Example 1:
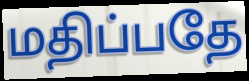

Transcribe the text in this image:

மதிப்பதே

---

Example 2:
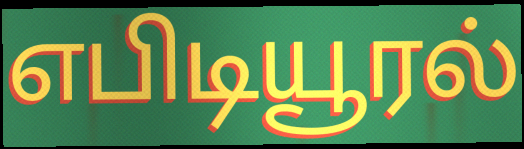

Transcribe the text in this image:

எபிடியூரல்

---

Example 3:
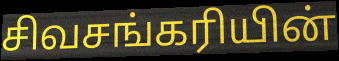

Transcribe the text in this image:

சிவசங்கரியின்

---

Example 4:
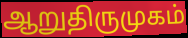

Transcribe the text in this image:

ஆறுதிருமுகம்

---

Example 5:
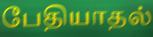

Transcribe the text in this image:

பேதியாதல்